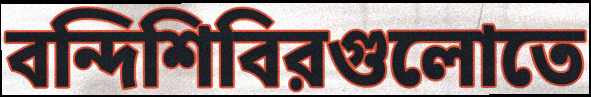
বন্দিশিবিরগুলোতে